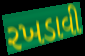
રખડાવી